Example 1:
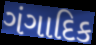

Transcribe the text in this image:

ગંગાદિક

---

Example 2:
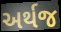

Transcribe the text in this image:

અર્થજ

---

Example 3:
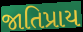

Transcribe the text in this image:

જાતિપ્રાય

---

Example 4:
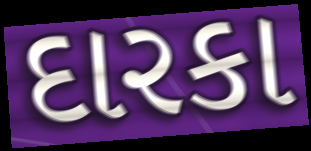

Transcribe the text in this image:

દારકા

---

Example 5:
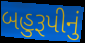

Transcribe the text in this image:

બહુરૂપીનું